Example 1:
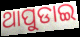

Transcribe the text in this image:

ଥାପୁଡାଇ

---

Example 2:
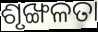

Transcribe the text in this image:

ଶୃଙ୍ଖଳତା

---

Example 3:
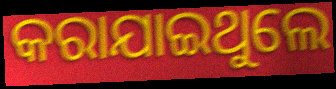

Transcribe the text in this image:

କରାଯାଇଥୁଲେ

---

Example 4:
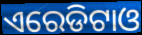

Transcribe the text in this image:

ଏରେଡିଟାଓ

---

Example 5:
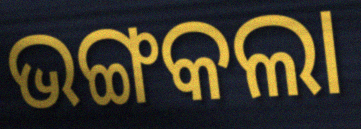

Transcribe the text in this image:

ଭଙ୍ଗକଲା